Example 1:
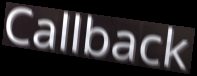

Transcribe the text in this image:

Callback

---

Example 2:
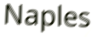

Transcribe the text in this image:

Naples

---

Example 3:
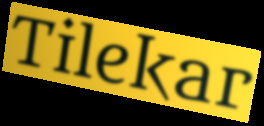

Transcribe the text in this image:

Tilekar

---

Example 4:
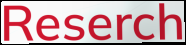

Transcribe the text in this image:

Reserch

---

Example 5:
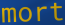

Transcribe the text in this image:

mort